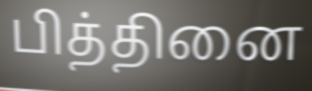
பித்தினை